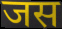
जस